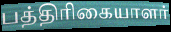
பத்திரிகையாளர்